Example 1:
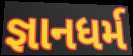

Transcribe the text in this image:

જ્ઞાનધર્મ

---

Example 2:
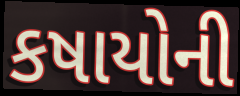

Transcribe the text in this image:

કષાયોની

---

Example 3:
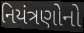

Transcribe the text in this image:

નિયંત્રણોનો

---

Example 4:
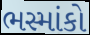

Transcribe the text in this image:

ભસ્માંકો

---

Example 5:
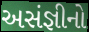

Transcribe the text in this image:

અસંજ્ઞીનો